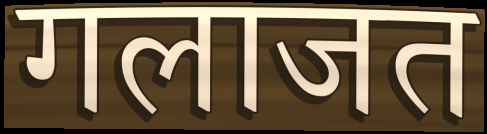
गलाजत